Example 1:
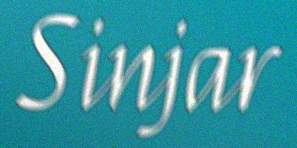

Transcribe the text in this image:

Sinjar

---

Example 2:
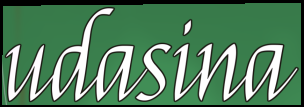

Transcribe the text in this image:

udasina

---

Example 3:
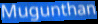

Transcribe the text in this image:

Mugunthan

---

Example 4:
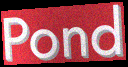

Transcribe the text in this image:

Pond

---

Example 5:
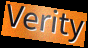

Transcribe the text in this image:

Verity